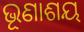
ଭୂଣାଶୟ